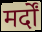
मर्दों